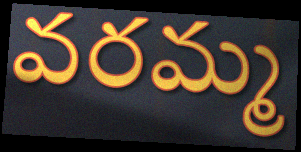
వరమ్మ